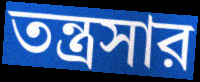
তন্ত্রসার